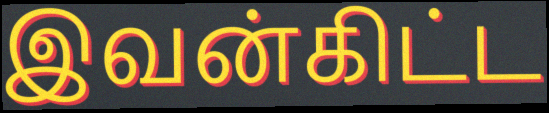
இவன்கிட்ட